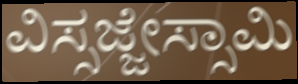
ವಿಸ್ಸಜ್ಜೇಸ್ಸಾಮಿ